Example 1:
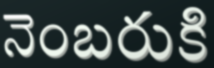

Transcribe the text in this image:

నెంబరుకి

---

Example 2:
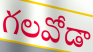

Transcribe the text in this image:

గలవోడా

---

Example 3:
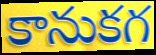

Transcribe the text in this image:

కానుకగ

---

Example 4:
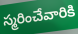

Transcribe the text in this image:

స్మరించేవారికి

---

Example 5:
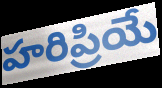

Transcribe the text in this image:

హరిప్రియే